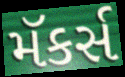
મૅકર્સ